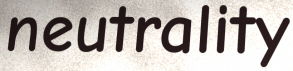
neutrality